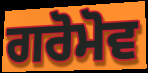
ਗਰੋਮੋਵ